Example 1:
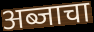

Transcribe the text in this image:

अब्जाचा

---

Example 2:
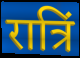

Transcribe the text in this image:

रात्रिं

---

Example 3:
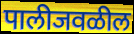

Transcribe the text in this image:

पालीजवळील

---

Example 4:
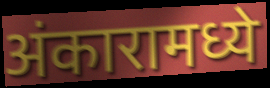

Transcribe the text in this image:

अंकारामध्ये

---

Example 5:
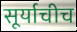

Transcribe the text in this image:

सूर्याचीच